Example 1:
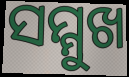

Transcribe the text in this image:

ସମ୍ମୁଖ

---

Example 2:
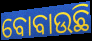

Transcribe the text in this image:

ବୋବାଉଛି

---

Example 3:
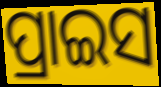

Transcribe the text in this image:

ପ୍ରାଇସ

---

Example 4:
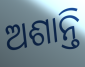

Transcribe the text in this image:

ଅଶାନ୍ତି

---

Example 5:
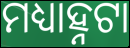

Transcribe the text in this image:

ମଧ୍ୟାହ୍ନଟା